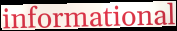
informational